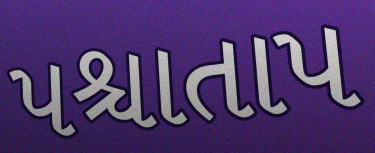
પશ્ચાતાપ